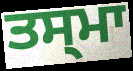
ਤਸ੍ਮਾ